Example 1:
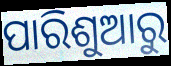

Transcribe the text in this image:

ପାରିଶୁଆରୁ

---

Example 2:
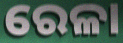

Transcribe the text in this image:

ରେଳା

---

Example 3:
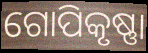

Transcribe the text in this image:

ଗୋପିକୃଷ୍ଣା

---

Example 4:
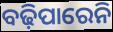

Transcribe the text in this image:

ବଢ଼ିପାରେନି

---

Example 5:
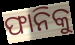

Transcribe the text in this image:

ଫାନିକୁ